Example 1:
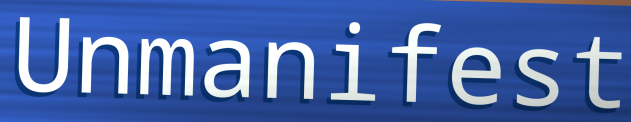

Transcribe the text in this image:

Unmanifest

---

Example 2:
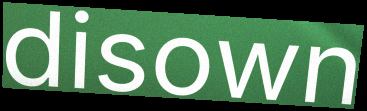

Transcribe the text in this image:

disown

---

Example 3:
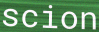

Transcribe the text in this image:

scion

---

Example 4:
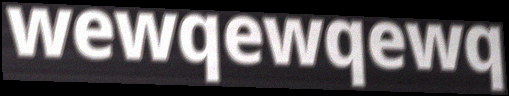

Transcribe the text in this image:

wewqewqewq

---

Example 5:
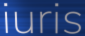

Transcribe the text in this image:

iuris